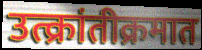
उत्क्रांतीक्रमात